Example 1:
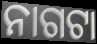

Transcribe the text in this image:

ନାଗଟା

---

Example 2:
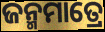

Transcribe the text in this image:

ଜନ୍ମମାତ୍ରେ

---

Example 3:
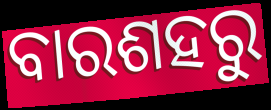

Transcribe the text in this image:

ବାରଶହରୁ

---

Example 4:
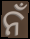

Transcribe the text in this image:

ନଁ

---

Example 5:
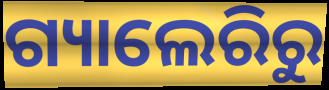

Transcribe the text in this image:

ଗ୍ୟାଲେରିରୁ